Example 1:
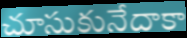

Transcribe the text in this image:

చూసుకునేదాకా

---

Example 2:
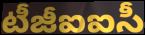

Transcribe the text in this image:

టీజీఐఐసీ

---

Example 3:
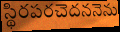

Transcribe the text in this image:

స్థిరపరచెదననెను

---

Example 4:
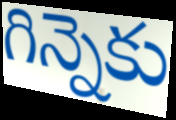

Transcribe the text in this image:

గిన్నెకు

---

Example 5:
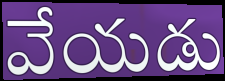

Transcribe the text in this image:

వేయడు